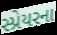
સ્પ્રેયરના